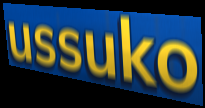
ussuko